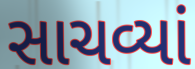
સાચવ્યાં